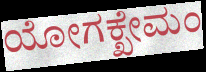
ಯೋಗಕ್ಖೇಮಂ